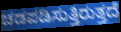
ಚಡಪಡಿಸುತ್ತಿರುತ್ತದೆ